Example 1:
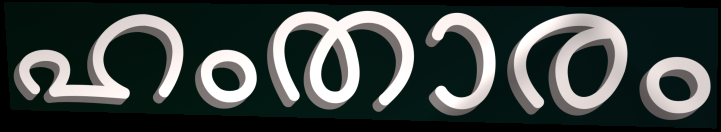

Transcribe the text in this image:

ഹംതാരം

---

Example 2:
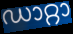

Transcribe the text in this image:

ഡാറ്റാ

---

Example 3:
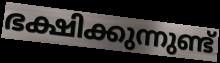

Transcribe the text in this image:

ഭക്ഷിക്കുന്നുണ്ട്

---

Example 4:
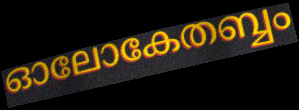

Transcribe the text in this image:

ഓലോകേതബ്ബം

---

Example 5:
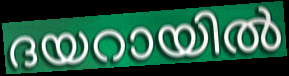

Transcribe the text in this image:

ദയറായിൽ